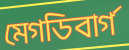
মেগডিবার্গ